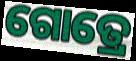
ଗୋତ୍ରେ